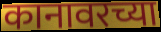
कानावरच्या